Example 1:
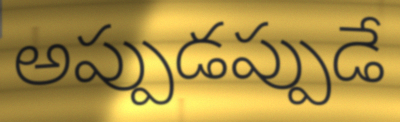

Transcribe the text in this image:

అప్పుడప్పుడే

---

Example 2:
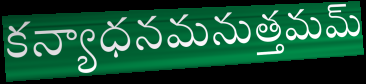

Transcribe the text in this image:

కన్యాధనమనుత్తమమ్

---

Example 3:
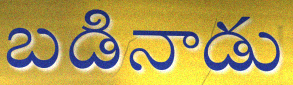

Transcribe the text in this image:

బడినాడు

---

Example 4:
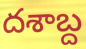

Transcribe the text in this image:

దశాబ్ద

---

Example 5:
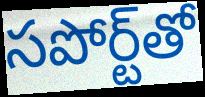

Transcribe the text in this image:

సపోర్ట్‌తో